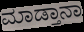
ಮಾಡ್ತಾನಾ